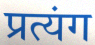
प्रत्यंग